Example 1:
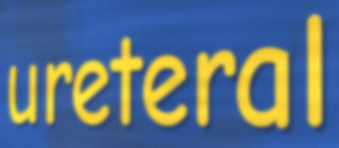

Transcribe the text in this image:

ureteral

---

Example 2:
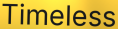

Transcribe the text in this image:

Timeless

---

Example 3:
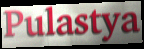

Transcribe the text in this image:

Pulastya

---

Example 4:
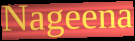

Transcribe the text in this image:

Nageena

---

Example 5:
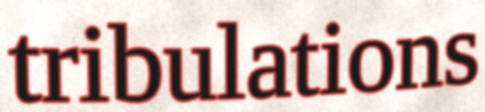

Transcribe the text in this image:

tribulations